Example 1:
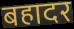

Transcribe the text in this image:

बहादर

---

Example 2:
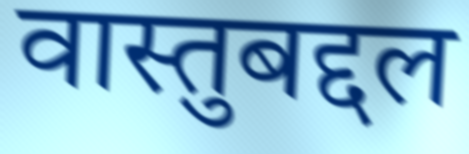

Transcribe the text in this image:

वास्तुबद्दल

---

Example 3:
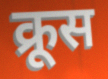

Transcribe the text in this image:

क्रूस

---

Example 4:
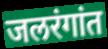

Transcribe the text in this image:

जलरंगांत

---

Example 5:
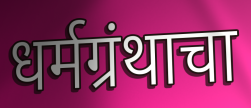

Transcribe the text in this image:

धर्मग्रंथाचा